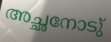
അച്ഛനോടു്